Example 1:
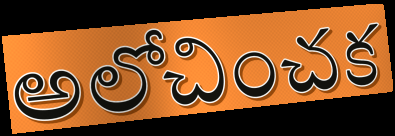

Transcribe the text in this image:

అలోచించక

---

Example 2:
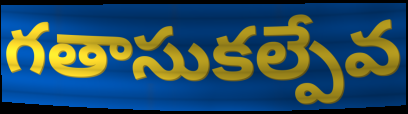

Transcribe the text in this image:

గతాసుకల్పేవ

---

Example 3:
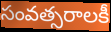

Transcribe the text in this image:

సంవత్సరాలకీ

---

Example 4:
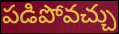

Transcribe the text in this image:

పడిపోవచ్చు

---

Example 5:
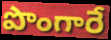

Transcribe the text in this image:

పొంగారే